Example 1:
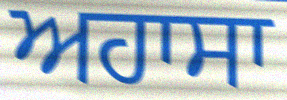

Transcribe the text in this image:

ਅਹਾਸਾ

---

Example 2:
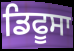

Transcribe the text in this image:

ਡਿਫੂਸਾ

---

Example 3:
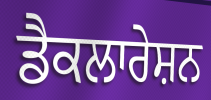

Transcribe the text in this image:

ਡੈਕਲਾਰੇਸ਼ਨ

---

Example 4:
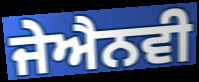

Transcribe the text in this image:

ਜੇਐਨਵੀ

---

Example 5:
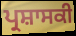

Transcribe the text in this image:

ਪ੍ਰਸ਼ਾਸਕੀ